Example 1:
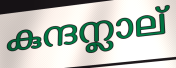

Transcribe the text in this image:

കുന്ദന്ലാല്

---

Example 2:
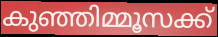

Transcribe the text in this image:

കുഞ്ഞിമ്മൂസക്ക്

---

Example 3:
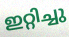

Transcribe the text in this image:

ഇറ്റിച്ചു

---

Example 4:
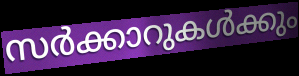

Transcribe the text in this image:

സർക്കാറുകൾക്കും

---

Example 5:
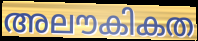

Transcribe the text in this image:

അലൗകികത